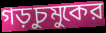
গড়চুমুকের